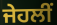
ਜੇਹਲੀਂ